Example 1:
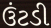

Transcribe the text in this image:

ઉંટડી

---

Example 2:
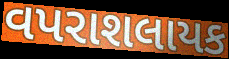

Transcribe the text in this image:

વપરાશલાયક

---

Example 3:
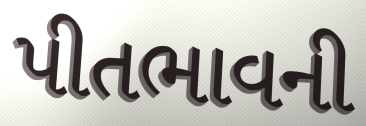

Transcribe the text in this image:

પીતભાવની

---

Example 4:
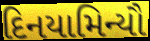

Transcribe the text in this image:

દિનયામિન્યૌ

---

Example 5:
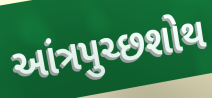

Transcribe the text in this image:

આંત્રપુચ્છશોથ